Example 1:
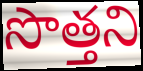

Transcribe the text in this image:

సొత్తని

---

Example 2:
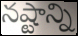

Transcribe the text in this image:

నష్టాన్ని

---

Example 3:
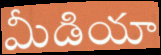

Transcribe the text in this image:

మీడియా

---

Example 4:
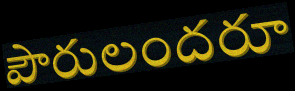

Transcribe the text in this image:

పౌరులందరూ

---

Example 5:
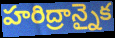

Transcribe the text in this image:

హరిద్రాన్నైక